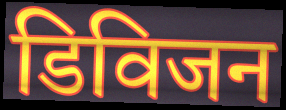
डिविजन